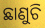
ଛାଣୁଚି